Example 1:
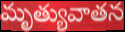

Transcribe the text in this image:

మృత్యువాతన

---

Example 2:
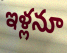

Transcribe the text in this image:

ఇళ్లనూ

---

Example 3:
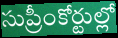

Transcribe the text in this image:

సుప్రీంకోర్టుల్లో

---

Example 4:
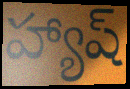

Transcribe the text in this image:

హ్యాష్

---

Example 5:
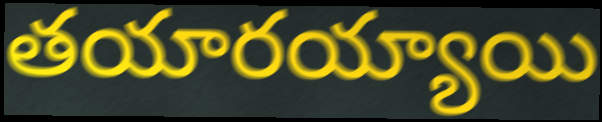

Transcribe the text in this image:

తయారయ్యాయి